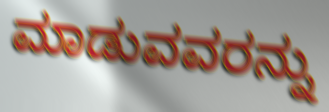
ಮಾಡುವವರನ್ನು